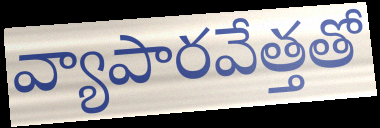
వ్యాపారవేత్తతో